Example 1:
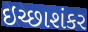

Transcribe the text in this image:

ઇચ્છાશંકર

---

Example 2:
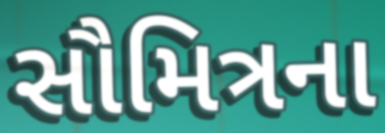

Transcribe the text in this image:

સૌમિત્રના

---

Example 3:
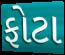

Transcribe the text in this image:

ફોટા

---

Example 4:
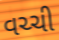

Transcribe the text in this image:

વચ્ચી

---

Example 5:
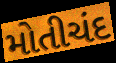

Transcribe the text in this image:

મોતીચંદ